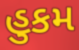
હુકમ